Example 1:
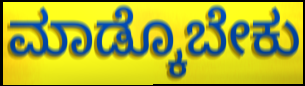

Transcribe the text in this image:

ಮಾಡ್ಕೊಬೇಕು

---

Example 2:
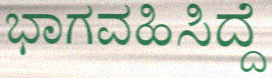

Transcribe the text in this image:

ಭಾಗವಹಿಸಿದ್ದೆ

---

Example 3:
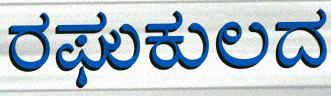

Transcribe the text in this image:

ರಘುಕುಲದ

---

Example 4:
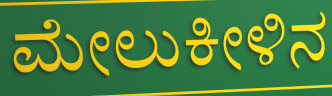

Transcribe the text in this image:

ಮೇಲುಕೀಳಿನ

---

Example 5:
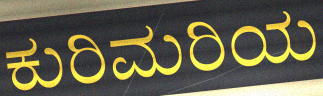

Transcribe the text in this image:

ಕುರಿಮರಿಯ